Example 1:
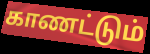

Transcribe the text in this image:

காணட்டும்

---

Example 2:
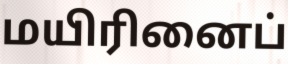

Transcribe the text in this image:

மயிரினைப்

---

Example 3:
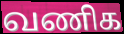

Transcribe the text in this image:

வணிக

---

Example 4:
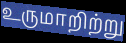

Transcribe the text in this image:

உருமாறிற்று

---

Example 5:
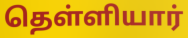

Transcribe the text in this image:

தெள்ளியார்